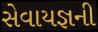
સેવાયજ્ઞની